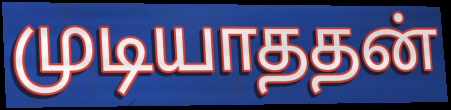
முடியாததன்